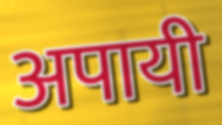
अपायी